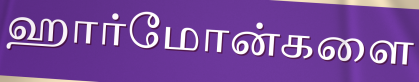
ஹார்மோன்களை